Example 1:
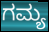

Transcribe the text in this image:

ಗಮ್ಯ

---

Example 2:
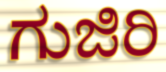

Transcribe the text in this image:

ಗುಜಿರಿ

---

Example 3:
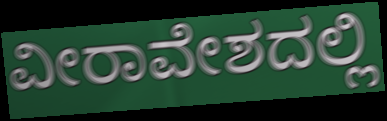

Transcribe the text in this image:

ವೀರಾವೇಶದಲ್ಲಿ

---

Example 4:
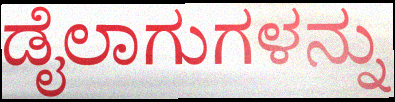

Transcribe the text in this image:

ಡೈಲಾಗುಗಳನ್ನು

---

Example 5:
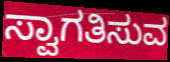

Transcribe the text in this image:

ಸ್ವಾಗತಿಸುವ